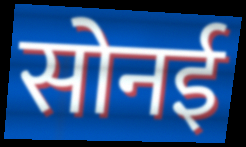
सोनई